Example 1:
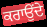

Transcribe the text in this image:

ਕਰਾਉਂਦੇ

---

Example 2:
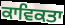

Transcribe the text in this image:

ਕਾਵਿਕਤਾ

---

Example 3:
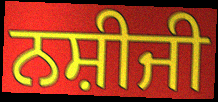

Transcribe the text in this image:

ਨਸ਼ੀਜੀ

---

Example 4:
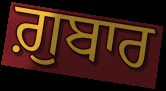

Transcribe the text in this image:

ਗ਼ੁਬਾਰ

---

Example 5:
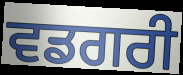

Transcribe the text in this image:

ਵਡਗਰੀ